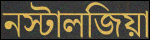
নস্টালজিয়া